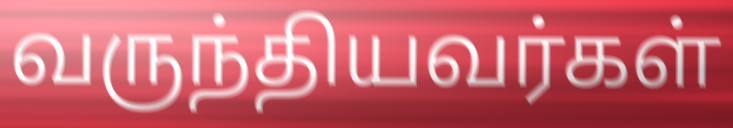
வருந்தியவர்கள்